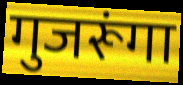
गुजरूंगा